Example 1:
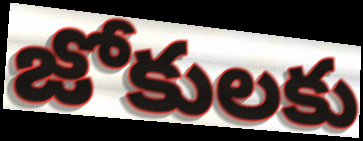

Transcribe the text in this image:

జోకులకు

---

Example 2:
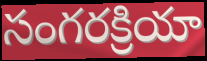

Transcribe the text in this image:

సంగరక్రియా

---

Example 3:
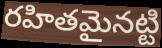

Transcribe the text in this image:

రహితమైనట్టి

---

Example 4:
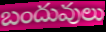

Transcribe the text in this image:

బందువులు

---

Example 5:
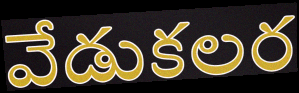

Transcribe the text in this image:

వేడుకలర